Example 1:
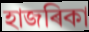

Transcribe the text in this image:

হাজৰিকা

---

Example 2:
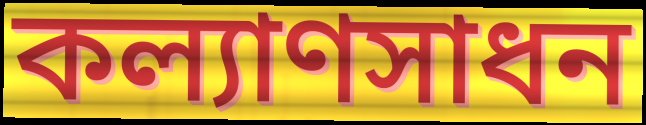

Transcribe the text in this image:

কল্যাণসাধন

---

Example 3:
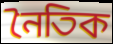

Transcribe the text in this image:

নৈতিক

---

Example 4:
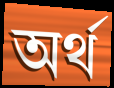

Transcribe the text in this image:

অৰ্থ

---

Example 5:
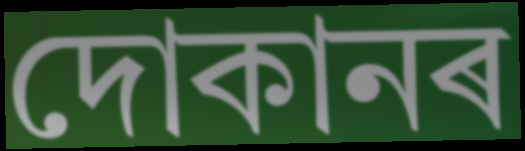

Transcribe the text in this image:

দোকানৰ